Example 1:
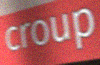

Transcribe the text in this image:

croup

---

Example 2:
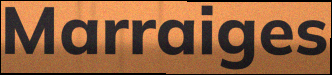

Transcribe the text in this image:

Marraiges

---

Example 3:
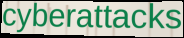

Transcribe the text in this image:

cyberattacks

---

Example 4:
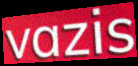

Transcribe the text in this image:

vazis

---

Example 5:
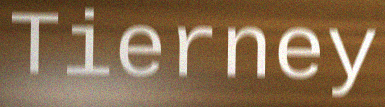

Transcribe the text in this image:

Tierney